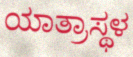
ಯಾತ್ರಾಸ್ಥಳ